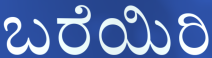
ಬರೆಯಿರಿ